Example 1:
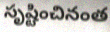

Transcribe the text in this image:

సృష్టించినంత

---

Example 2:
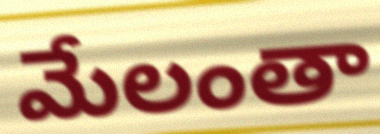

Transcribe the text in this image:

మేలంతా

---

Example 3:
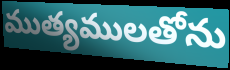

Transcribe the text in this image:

ముత్యములతోను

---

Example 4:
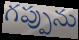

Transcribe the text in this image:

గప్పును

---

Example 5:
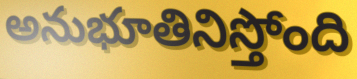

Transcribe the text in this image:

అనుభూతినిస్తోంది